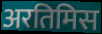
अरतिमिस